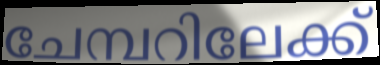
ചേമ്പറിലേക്ക്